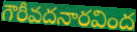
గౌరీవదనారవింద